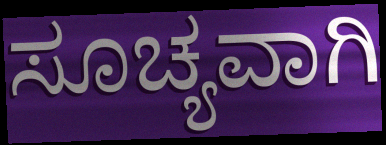
ಸೂಚ್ಯವಾಗಿ